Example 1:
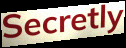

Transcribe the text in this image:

Secretly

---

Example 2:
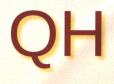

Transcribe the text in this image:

QH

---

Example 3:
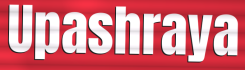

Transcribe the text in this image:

Upashraya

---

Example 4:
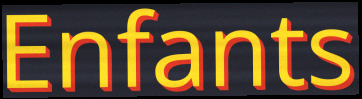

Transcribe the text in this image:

Enfants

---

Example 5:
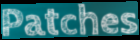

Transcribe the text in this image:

Patches